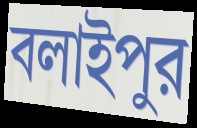
বলাইপুর